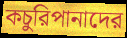
কচুরিপানাদের